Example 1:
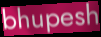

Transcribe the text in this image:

bhupesh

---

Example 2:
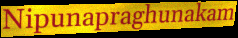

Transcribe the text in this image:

Nipunapraghunakam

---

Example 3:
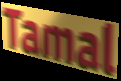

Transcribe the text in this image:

Tamal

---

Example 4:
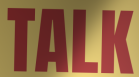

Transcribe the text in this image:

TALK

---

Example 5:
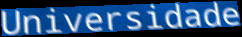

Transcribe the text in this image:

Universidade